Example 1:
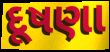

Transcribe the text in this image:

દૂષણા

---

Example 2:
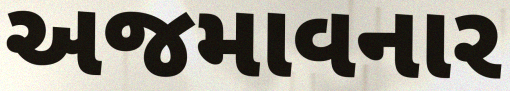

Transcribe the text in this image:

અજમાવનાર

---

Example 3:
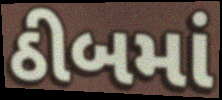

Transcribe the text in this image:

ઠીબમાં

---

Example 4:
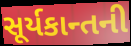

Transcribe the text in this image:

સૂર્યકાન્તની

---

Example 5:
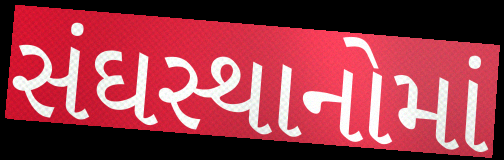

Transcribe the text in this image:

સંઘસ્થાનોમાં